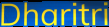
Dharitri